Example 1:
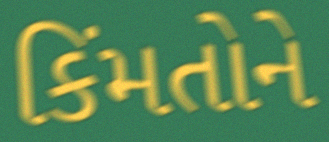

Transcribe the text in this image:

કિંમતોને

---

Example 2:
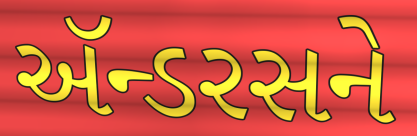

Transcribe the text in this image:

ઍન્ડરસને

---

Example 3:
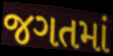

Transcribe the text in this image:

જગતમાં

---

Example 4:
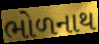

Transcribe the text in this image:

ભોળનાથ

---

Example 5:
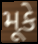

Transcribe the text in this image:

મૂકે